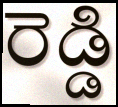
రెడ్డి